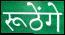
रूठेंगे